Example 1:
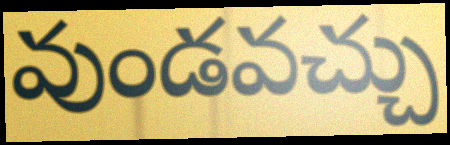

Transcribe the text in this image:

వుండవచ్చు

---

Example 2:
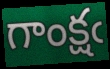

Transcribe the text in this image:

గాంక్షఁ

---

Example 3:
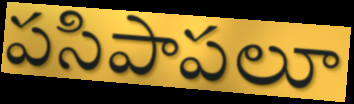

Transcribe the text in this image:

పసిపాపలూ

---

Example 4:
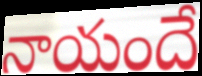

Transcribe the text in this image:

నాయందే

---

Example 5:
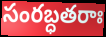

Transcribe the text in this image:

సంరబ్ధతరాః